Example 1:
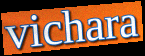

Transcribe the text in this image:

vichara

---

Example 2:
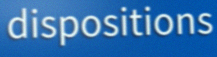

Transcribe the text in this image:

dispositions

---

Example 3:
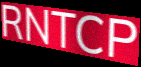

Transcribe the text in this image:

RNTCP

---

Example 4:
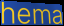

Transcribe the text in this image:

hema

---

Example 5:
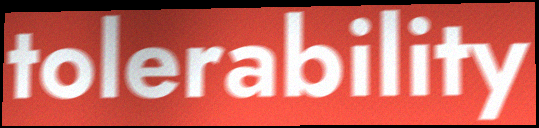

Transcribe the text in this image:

tolerability